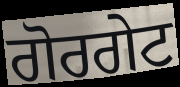
ਗੋਰਗੇਟ